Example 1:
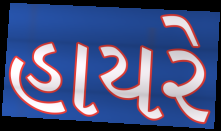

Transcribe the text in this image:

હાયરે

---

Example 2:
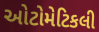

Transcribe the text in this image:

ઓટોમેટિકલી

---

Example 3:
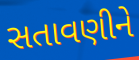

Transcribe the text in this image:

સતાવણીને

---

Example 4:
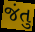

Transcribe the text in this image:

જંતુ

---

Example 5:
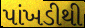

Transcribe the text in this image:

પાંખડીથી